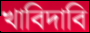
খাবিদাবি